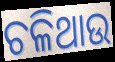
ଚଳିଥାଉ